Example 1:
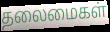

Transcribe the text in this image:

தலைமைகள்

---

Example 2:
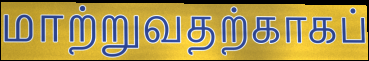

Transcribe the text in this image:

மாற்றுவதற்காகப்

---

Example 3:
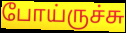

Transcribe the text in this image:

போய்ருச்சு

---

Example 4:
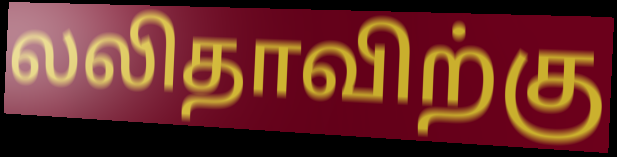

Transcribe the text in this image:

லலிதாவிற்கு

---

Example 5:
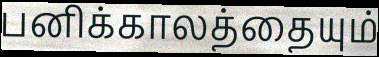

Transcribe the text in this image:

பனிக்காலத்தையும்